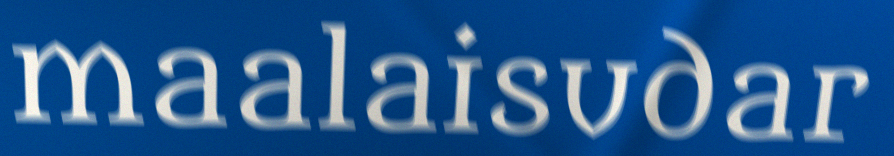
maalaisudar